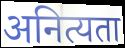
अनित्यता